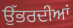
ਉੱਭਰਦੀਆਂ